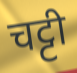
चट्टी